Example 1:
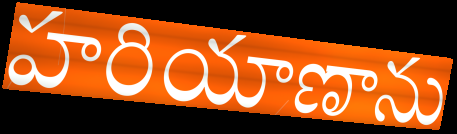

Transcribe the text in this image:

హరియాణాను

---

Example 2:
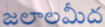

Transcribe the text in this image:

జలాలమీద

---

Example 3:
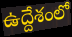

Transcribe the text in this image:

ఉద్దేశంలో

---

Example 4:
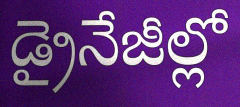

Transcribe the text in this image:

డ్రైనేజీల్లో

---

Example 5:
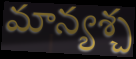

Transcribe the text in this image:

మాన్యశ్చ